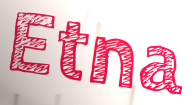
Etna